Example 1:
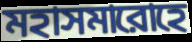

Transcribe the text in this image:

মহাসমারোহে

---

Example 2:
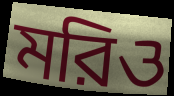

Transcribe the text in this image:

মরিও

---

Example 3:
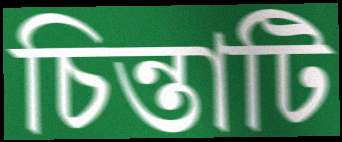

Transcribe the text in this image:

চিন্তাটি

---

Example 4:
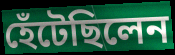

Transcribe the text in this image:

হেঁটেছিলেন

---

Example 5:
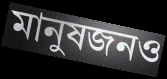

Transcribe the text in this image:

মানুষজনও